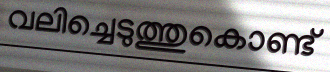
വലിച്ചെടുത്തുകൊണ്ട്